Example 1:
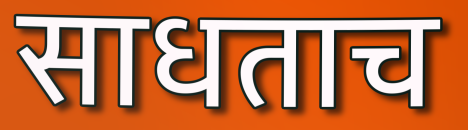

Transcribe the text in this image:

साधताच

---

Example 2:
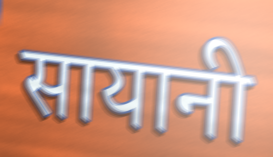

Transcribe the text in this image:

सायानी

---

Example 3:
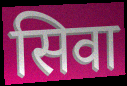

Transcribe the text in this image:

सिवा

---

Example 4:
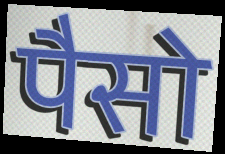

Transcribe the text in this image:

पैसो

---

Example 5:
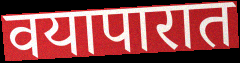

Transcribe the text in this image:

वयापारात